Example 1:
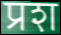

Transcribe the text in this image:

प्रश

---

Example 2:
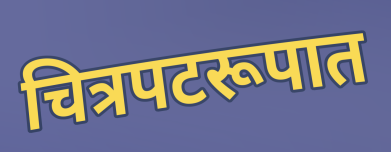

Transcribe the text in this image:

चित्रपटरूपात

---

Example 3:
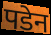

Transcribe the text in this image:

पडेन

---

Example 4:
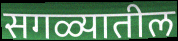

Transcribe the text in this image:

सगळ्यातील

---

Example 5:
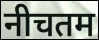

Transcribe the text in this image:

नीचतम